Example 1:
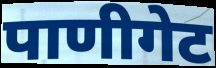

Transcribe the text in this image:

पाणीगेट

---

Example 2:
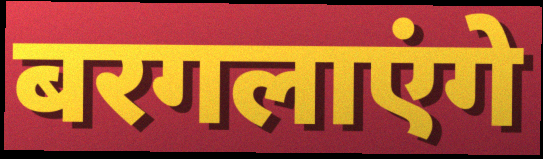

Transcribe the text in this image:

बरगलाएंगे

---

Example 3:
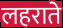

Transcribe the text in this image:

लहराते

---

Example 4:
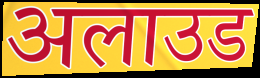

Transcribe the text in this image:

अलाउड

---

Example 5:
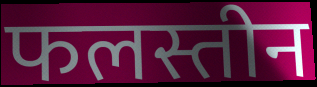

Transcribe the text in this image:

फलस्तीन